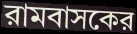
রামবাসকের